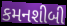
કમનશીબી